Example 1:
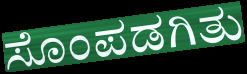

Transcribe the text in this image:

ಸೊಂಪಡಗಿತು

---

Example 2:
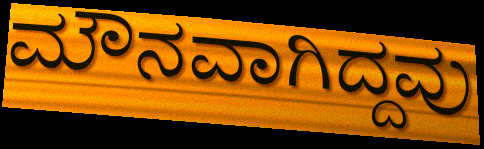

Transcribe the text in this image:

ಮೌನವಾಗಿದ್ದವು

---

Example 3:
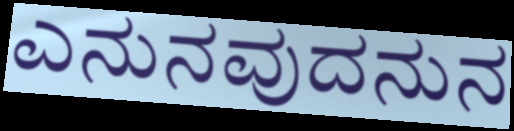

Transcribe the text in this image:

ಎನುನವುದನುನ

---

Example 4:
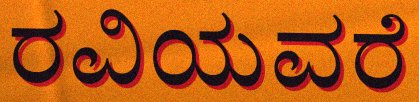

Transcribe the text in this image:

ರವಿಯವರೆ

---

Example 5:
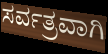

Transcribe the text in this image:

ಸರ್ವತ್ರವಾಗಿ